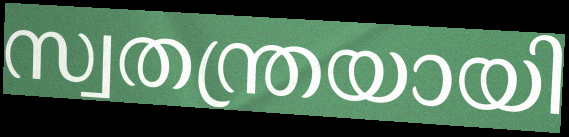
സ്വതന്ത്രയായി